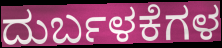
ದುರ್ಬಳಕೆಗಳ